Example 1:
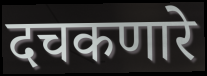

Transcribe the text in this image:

दचकणारे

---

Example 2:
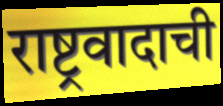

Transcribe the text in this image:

राष्ट्रवादाची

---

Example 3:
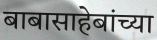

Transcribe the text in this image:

बाबासाहेबांच्‍या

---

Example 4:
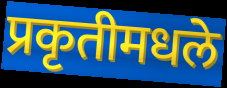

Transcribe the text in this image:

प्रकृतीमधले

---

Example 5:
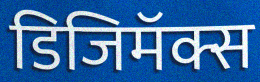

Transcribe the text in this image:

डिजिमॅक्स